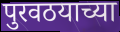
पुरवठयाच्या